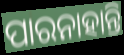
ପାରନାହାନ୍ତି